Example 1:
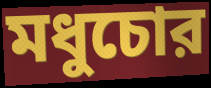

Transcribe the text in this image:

মধুচোর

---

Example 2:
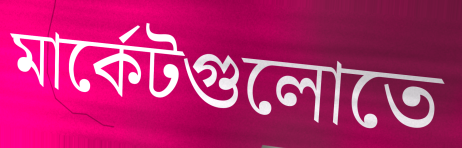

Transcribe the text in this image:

মার্কেটগুলোতে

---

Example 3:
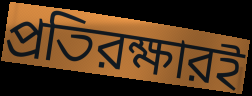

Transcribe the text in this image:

প্রতিরক্ষারই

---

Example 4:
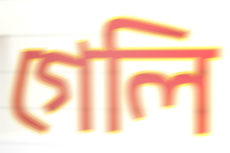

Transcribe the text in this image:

গেলি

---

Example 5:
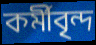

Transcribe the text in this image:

কর্মীবৃন্দ